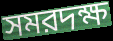
সমরদক্ষ